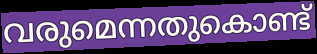
വരുമെന്നതുകൊണ്ട്